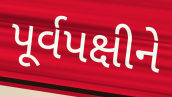
પૂર્વપક્ષીને